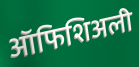
ऑफिशिअली